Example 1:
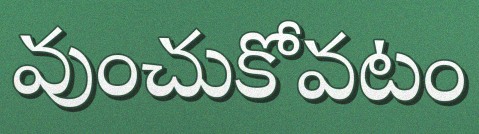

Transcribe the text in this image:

వుంచుకోవటం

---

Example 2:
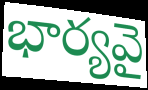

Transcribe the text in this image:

భార్యవై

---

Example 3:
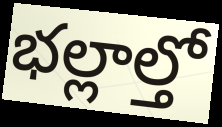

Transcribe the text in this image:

భల్లాల్తో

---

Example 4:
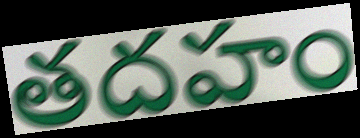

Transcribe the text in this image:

తదహం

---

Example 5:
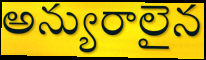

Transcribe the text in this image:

అన్యురాలైన